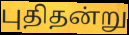
புதிதன்று